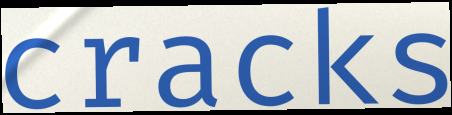
cracks